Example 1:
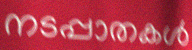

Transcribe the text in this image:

നടപ്പാതകൾ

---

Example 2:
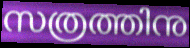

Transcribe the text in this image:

സത്രത്തിനു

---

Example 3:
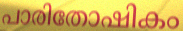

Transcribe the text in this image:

പാരിതോഷികം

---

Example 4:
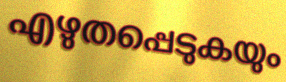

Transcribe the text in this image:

എഴുതപ്പെടുകയും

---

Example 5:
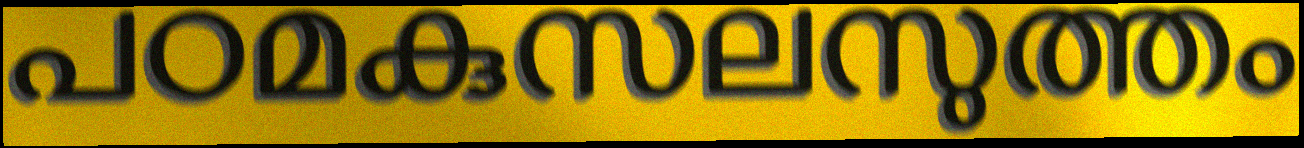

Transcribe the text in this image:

പഠമകുസലസുത്തം